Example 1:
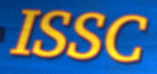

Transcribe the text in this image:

ISSC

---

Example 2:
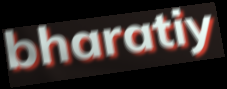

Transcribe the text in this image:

bharatiy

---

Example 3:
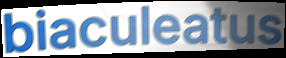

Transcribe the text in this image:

biaculeatus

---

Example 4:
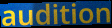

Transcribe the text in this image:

audition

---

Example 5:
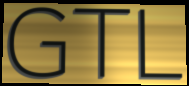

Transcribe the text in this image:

GTL